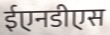
ईएनडीएस